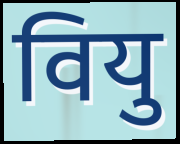
वियु